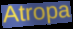
Atropa